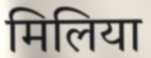
मिलिया